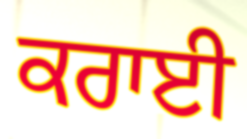
ਕਰਾਈ